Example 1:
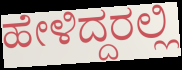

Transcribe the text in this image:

ಹೇಳಿದ್ದರಲ್ಲಿ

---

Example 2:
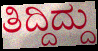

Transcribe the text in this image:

ತಿದ್ದಿದ್ದು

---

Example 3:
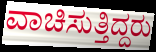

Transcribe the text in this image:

ವಾಚಿಸುತ್ತಿದ್ದರು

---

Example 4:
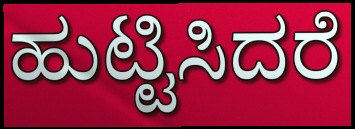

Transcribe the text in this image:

ಹುಟ್ಟಿಸಿದರೆ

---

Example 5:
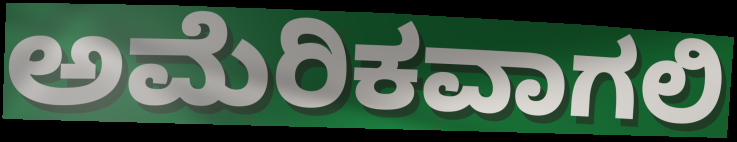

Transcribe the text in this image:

ಅಮೆರಿಕವಾಗಲಿ